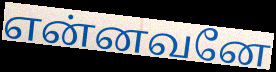
என்னவனே